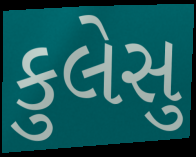
કુલેસુ